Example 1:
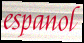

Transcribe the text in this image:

espanol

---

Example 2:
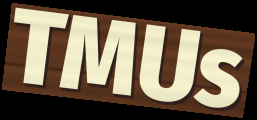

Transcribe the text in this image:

TMUs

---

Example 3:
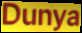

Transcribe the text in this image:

Dunya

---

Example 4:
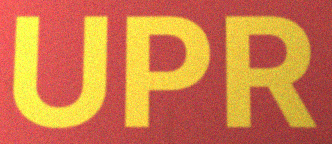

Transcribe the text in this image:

UPR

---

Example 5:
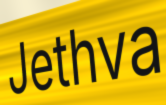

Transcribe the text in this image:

Jethva